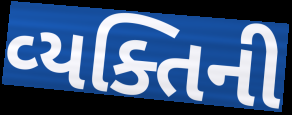
વ્‍યક્તિની